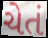
ચેતં